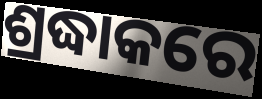
ଶ୍ରଦ୍ଧାକରେ